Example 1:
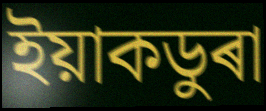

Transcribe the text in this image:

ইয়াকডুৰা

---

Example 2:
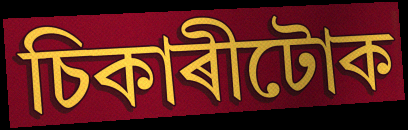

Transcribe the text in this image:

চিকাৰীটোক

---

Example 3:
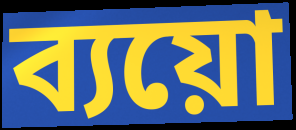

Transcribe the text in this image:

ব্যয়ো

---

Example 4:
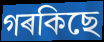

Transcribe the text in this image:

গৰকিছে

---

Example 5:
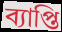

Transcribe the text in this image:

ব্য়াপ্তি